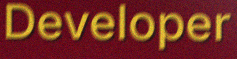
Developer